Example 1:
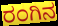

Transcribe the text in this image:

ರಂಗಿನ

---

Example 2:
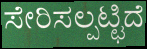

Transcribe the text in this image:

ಸೇರಿಸಲ್ಪಟ್ಟಿದೆ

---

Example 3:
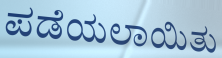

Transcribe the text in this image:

ಪಡೆಯಲಾಯಿತು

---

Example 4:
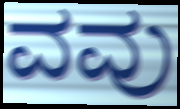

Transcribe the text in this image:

ವವು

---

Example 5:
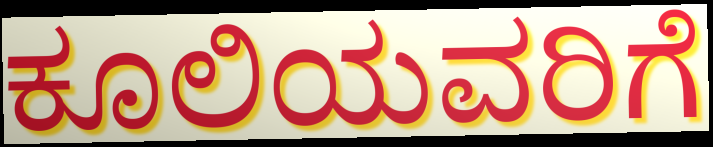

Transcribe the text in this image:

ಕೂಲಿಯವರಿಗೆ